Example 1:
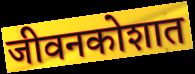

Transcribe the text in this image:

जीवनकोशात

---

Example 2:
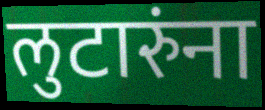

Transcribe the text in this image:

लुटारुंना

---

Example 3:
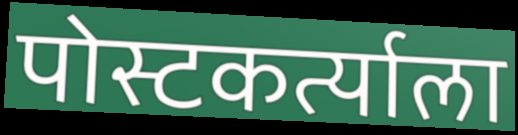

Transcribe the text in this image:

पोस्टकर्त्याला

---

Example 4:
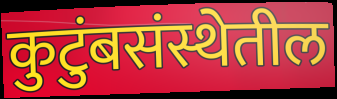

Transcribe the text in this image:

कुटुंबसंस्थेतील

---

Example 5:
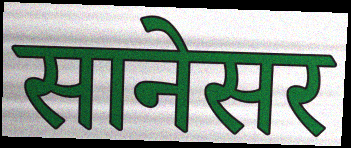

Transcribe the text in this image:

सानेसर